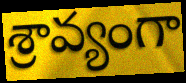
శ్రావ్యంగా